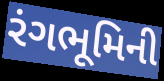
રંગભૂમિની